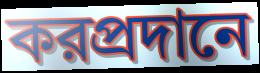
করপ্রদানে